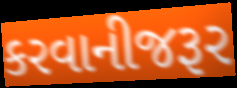
કરવાનીજરૂર